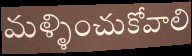
మళ్ళించుకోవాలి